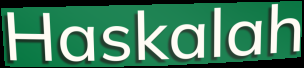
Haskalah